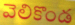
వెలికొండ